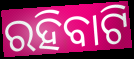
ରହିବାଟି